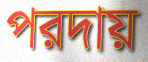
পরদায়